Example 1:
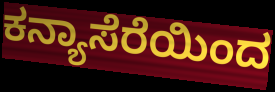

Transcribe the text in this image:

ಕನ್ಯಾಸೆರೆಯಿಂದ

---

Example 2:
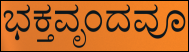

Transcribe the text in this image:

ಭಕ್ತವೃಂದವೂ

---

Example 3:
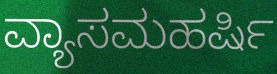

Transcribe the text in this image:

ವ್ಯಾಸಮಹರ್ಷಿ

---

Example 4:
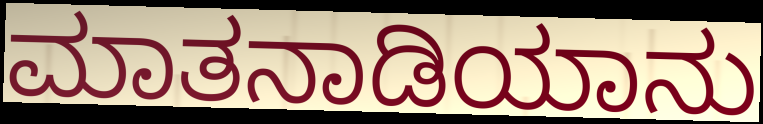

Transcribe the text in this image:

ಮಾತನಾಡಿಯಾನು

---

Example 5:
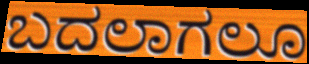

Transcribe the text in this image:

ಬದಲಾಗಲೂ